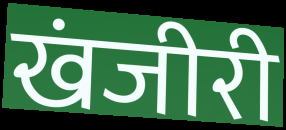
खंजीरी